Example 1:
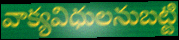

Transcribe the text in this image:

వాక్యవిధులనుబట్టి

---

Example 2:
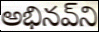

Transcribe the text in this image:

అభినవ్‌ని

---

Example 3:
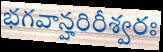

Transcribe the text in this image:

భగవాన్హరిరీశ్వరః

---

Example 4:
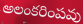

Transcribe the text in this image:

అలంకరింపవు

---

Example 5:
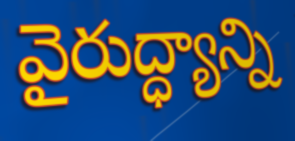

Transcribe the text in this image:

వైరుద్ధ్యాన్ని